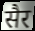
सैर